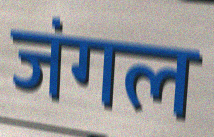
जंगल